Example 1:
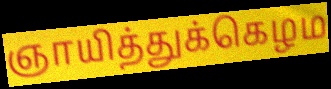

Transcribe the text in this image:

ஞாயித்துக்கெழம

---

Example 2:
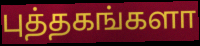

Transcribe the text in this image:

புத்தகங்களா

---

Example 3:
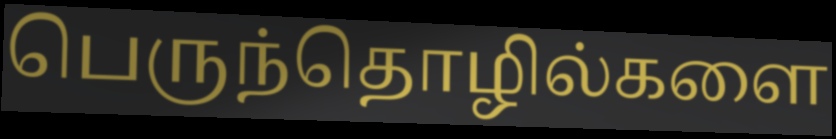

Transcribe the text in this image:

பெருந்தொழில்களை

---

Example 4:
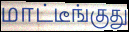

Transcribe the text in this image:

மாட்டீங்குது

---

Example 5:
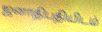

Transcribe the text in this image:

ஜனாதிபதியிடம்